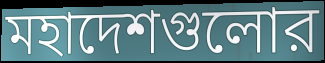
মহাদেশগুলোর